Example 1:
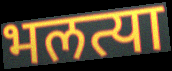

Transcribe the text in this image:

भलत्या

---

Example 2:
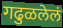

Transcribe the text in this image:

गढुळलेलं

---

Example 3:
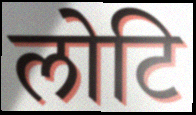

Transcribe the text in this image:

लोटि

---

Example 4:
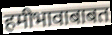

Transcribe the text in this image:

हमीभावाबाबत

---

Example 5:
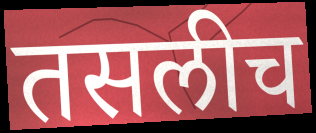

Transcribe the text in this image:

तसलीच